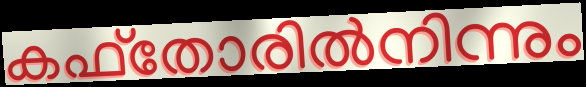
കഫ്തോരിൽനിന്നും